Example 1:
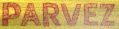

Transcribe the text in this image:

PARVEZ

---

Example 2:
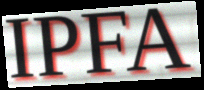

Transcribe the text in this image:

IPFA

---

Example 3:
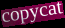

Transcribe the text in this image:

copycat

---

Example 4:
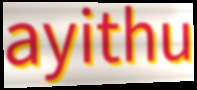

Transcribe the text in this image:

ayithu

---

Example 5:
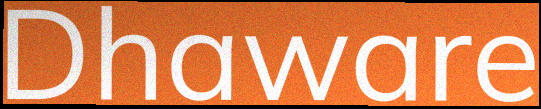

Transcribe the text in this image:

Dhaware